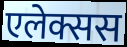
एलेक्सस